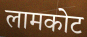
लामकोट